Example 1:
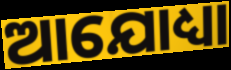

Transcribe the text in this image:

ଆଯୋଧ୍ୟା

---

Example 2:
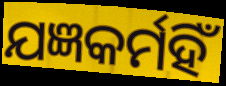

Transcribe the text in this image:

ଯଜ୍ଞକର୍ମହିଁ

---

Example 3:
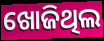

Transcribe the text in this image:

ଖୋଜିଥିଲ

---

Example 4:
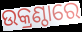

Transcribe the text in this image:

ଉକ୍ରଣ୍ଠାରେ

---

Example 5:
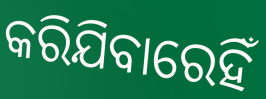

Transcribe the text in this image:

କରିଯିବାରେହିଁ